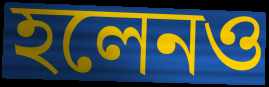
হলেনও